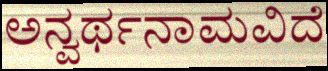
ಅನ್ವರ್ಥನಾಮವಿದೆ